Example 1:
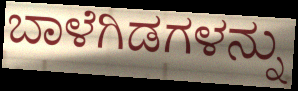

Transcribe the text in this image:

ಬಾಳೆಗಿಡಗಳನ್ನು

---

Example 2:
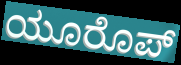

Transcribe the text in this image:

ಯೂರೊಪ್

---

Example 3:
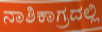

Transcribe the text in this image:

ನಾಶಿಕಾಗ್ರದಲ್ಲಿ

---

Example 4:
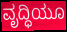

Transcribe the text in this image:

ವೃದ್ಧಿಯೂ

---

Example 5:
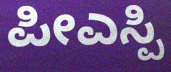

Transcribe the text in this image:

ಪೀಎಸ್ಪಿ